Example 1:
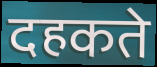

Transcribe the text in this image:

दहकते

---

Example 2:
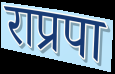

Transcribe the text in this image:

राप्रपा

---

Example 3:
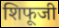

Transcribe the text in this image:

शिफूजी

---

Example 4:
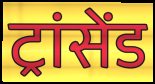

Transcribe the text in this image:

ट्रांसेंड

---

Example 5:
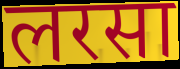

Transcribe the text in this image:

लरसा